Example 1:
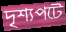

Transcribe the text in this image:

দৃশ্যপটে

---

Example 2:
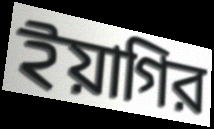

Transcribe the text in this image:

ইয়াগির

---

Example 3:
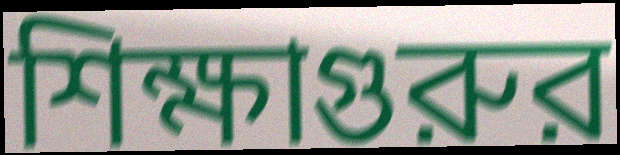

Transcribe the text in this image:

শিক্ষাগুরুর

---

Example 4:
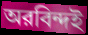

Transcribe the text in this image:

অরবিন্দই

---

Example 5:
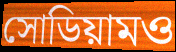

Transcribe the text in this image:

সোডিয়ামও